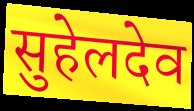
सुहेलदेव